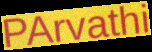
PArvathi